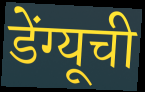
डेंग्यूची